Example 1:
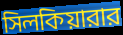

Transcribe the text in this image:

সিলকিয়ারার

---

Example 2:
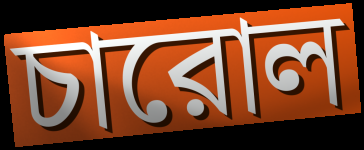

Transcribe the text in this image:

চারোল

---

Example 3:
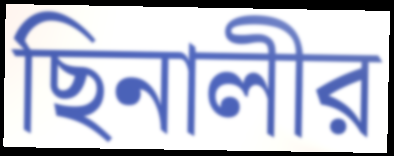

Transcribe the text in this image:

ছিনালীর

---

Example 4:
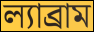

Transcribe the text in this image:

ল্যাব্রাম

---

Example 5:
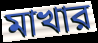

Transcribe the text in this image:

মাখার